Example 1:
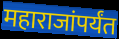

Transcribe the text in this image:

महाराजांपर्यंत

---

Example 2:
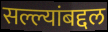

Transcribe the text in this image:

सल्ल्यांबद्दल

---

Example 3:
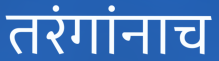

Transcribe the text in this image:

तरंगांनाच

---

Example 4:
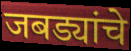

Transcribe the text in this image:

जबड्यांचे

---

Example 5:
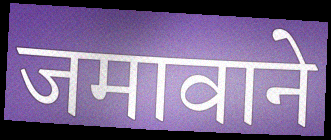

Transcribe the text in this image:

जमावाने